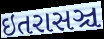
ઇતરાસઞ્ચ